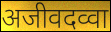
अजीवदव्वा